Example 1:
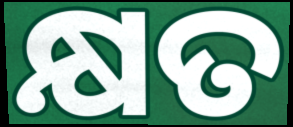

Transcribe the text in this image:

କ୍ଷତ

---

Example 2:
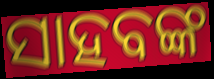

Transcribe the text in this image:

ସାହବଙ୍କ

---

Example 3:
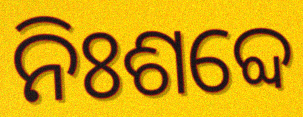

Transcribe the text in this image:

ନିଃଶବ୍ଦେ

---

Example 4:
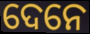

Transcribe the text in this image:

ଦେନେ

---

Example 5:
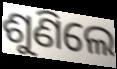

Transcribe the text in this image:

ଶୁଣିଲେ